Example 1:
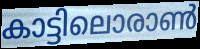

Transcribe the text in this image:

കാട്ടിലൊരാൺ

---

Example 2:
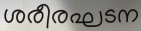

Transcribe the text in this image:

ശരീരഘടന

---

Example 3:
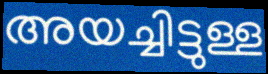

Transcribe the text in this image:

അയച്ചിട്ടുള്ള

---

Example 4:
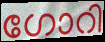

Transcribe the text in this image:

ഗോറി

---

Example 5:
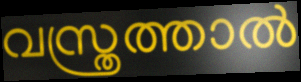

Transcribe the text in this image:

വസ്ത്രത്താൽ